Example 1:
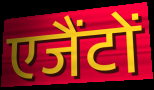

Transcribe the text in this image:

एजैंटों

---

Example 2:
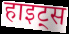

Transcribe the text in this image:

हाइट्स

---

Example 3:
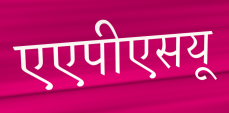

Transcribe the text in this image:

एएपीएसयू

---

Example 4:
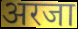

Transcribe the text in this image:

अरजा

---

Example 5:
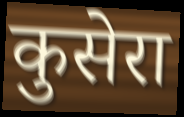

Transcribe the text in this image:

कुसेरा